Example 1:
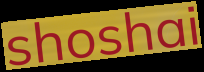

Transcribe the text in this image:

shoshai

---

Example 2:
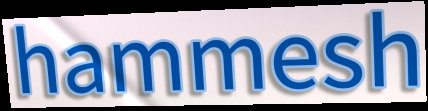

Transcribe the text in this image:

hammesh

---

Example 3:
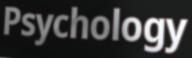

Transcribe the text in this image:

Psychology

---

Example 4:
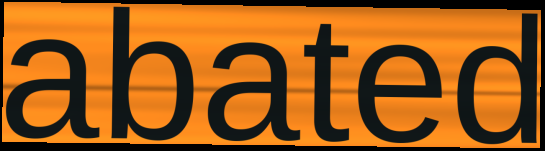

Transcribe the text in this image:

abated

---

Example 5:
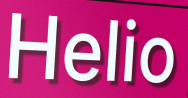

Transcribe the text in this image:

Helio